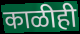
काळीही